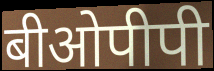
बीओपीपी